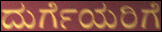
ದುರ್ಗೆಯರಿಗೆ